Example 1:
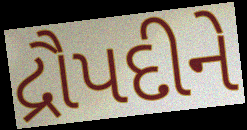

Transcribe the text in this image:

દ્રૌપદીને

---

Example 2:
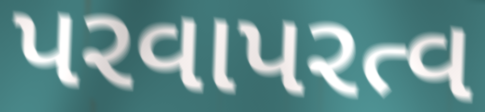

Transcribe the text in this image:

પરવાપરત્વ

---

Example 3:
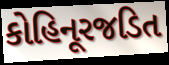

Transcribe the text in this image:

કોહિનૂરજડિત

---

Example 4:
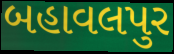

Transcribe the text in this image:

બહાવલપુર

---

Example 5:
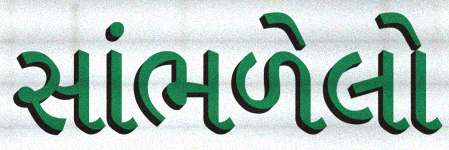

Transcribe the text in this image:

સાંભળેલો